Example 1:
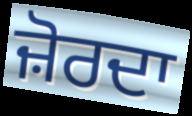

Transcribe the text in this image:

ਜ਼ੋਰਦਾ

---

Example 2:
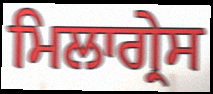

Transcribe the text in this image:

ਮਿਲਾਗ੍ਰੇਸ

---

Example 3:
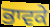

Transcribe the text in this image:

ਭਾਵਕੇ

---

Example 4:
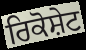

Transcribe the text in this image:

ਰਿਕੋਸ਼ੇਟ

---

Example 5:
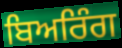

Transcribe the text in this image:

ਬਿਅਰਿੰਗ